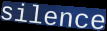
silence